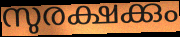
സുരക്ഷക്കും